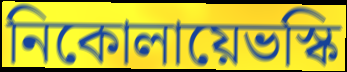
নিকোলায়েভস্কি